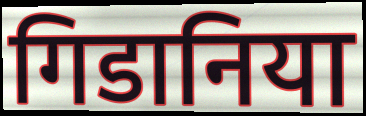
गिडानिया